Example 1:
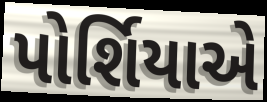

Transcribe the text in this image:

પોર્શિયાએ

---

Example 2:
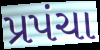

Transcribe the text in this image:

પ્રપંચા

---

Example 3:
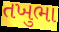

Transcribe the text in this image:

તખુભા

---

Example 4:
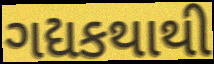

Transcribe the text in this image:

ગદ્યકથાથી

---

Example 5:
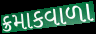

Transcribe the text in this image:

ક્રમાકવાળા